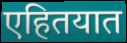
एहितयात